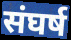
संघर्ष